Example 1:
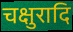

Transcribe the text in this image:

चक्षुरादि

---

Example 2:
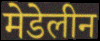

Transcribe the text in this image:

मेडेलीन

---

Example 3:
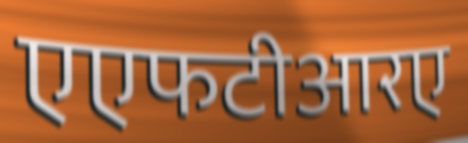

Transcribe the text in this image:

एएफटीआरए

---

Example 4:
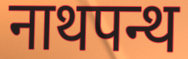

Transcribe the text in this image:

नाथपन्थ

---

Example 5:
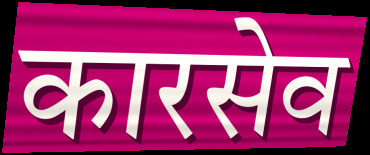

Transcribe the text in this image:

कारसेव